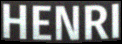
HENRI